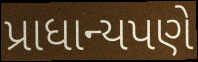
પ્રાધાન્યપણે